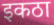
इकठा